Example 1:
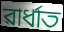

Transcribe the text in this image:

ৱাৰ্ধাত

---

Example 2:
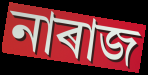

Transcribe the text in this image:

নাৰাজ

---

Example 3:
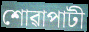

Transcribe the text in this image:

শোৱাপাটী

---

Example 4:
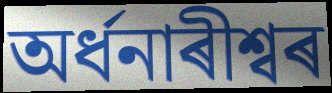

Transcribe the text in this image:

অৰ্ধনাৰীশ্বৰ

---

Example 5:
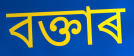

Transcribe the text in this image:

বক্তাৰ